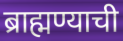
ब्राह्मण्याची